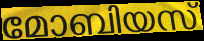
മോബിയസ്